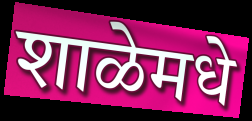
शाळेमधे